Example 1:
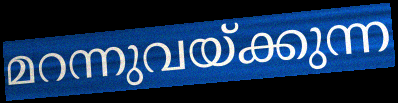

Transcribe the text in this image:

മറന്നുവയ്ക്കുന്ന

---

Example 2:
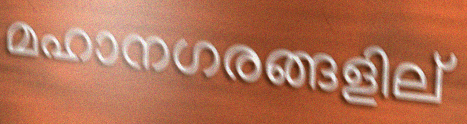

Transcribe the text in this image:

മഹാനഗരങ്ങളില്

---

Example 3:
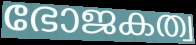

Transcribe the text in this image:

ഭോജകത്വ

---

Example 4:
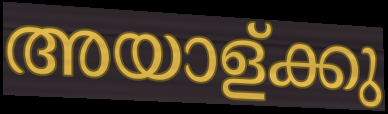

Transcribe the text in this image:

അയാള്ക്കു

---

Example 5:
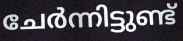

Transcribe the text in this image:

ചേർന്നിട്ടുണ്ട്